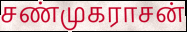
சண்முகராசன்